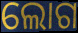
ଲୋଗ